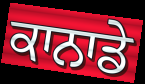
ਕਾਨਾਡੇ